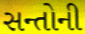
સન્તોની